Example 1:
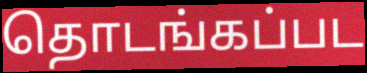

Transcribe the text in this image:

தொடங்கப்பட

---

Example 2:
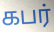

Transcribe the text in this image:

கபர்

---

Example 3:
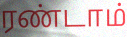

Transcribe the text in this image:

ரண்டாம்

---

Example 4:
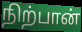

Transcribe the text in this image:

நிற்பான்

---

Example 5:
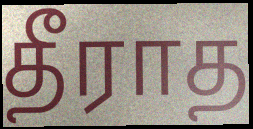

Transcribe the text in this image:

தீராத